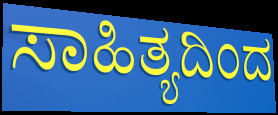
ಸಾಹಿತ್ಯದಿಂದ